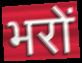
भरों